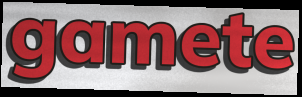
gamete